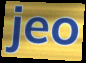
jeo